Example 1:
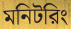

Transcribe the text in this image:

মনিটরিং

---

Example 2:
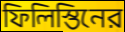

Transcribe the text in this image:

ফিলিস্তিনের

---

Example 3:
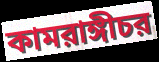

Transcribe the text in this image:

কামরাঙ্গীচর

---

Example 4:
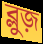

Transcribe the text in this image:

ব্লুজ়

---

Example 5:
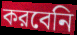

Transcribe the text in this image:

করবেনি